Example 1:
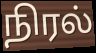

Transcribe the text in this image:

நிரல்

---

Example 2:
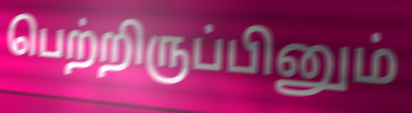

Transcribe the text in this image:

பெற்றிருப்பினும்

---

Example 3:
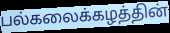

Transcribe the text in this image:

பல்கலைக்கழத்தின்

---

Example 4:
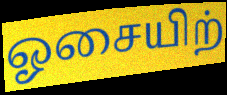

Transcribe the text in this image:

ஓசையிற்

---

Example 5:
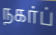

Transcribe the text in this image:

நகர்ப்